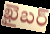
ఖైబర్